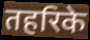
तहरिके